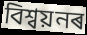
বিশ্বয়নৰ